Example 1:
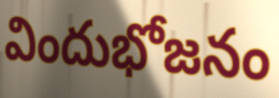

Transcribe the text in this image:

విందుభోజనం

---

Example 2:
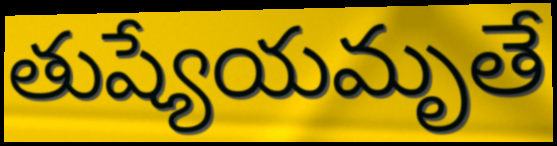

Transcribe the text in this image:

తుష్యేయమృతే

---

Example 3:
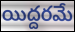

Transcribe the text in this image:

యిద్దరమే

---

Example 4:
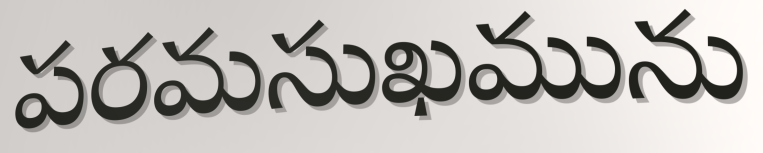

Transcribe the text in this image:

పరమసుఖమును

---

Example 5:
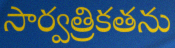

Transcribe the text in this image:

సార్వత్రికతను